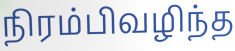
நிரம்பிவழிந்த